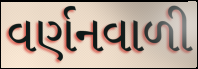
વર્ણનવાળી